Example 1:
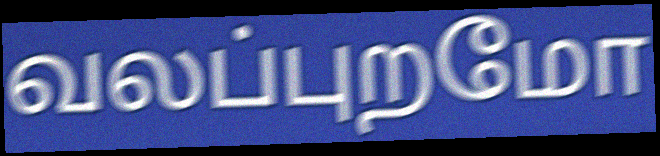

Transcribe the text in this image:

வலப்புறமோ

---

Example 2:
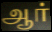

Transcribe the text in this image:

ஆர்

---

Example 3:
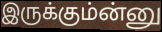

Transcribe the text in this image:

இருக்கும்ன்னு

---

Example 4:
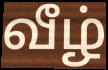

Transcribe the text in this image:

வீழ்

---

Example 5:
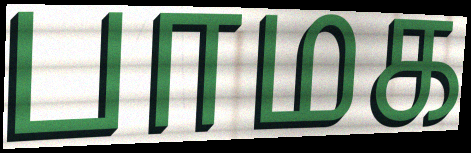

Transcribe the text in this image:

பாமக